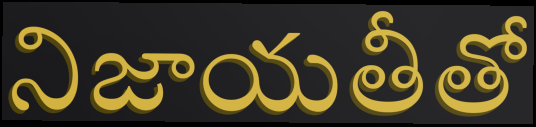
నిజాయతీతో